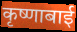
कृष्णाबाई